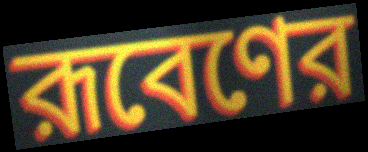
রূবেণের